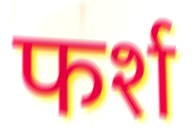
फर्श